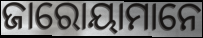
ଜାରୋୟାମାନେ